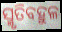
ସ୍ମୃତିବହୁଳ